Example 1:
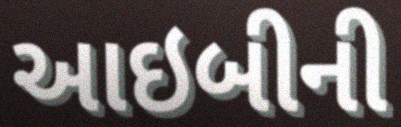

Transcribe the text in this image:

આઇબીની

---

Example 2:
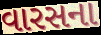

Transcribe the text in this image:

વારસના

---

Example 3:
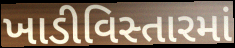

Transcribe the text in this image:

ખાડીવિસ્તારમાં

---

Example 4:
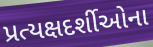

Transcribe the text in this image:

પ્રત્યક્ષદર્શીઓના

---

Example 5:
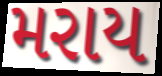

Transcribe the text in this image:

મરાય